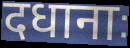
दधानाः